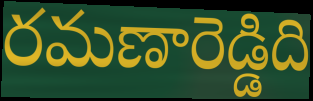
రమణారెడ్డిది